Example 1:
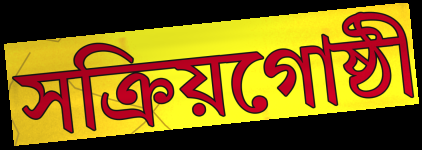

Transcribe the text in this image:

সক্রিয়গোষ্ঠী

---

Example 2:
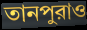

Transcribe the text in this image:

তানপুরাও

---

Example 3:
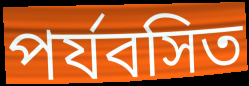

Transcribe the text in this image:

পর্যবসিত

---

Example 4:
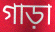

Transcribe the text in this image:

গাড়া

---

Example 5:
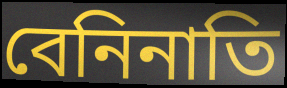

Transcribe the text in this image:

বেনিনাতি